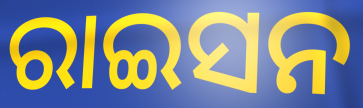
ରାଇସନ